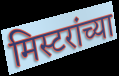
मिस्टरांच्या